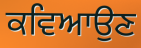
ਕਵਿਆਉਣ